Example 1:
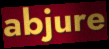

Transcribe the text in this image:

abjure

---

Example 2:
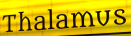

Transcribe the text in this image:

Thalamus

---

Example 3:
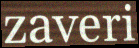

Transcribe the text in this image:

zaveri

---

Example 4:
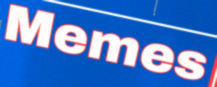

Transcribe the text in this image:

Memes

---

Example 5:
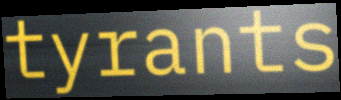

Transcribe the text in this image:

tyrants